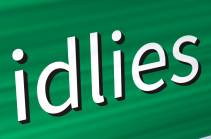
idlies